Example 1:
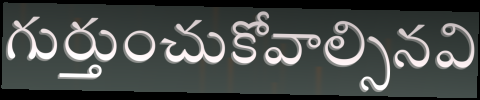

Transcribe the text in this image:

గుర్తుంచుకోవాల్సినవి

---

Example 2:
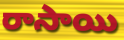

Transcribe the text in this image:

రాసాయి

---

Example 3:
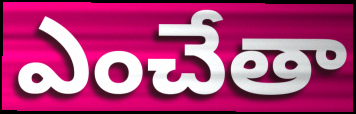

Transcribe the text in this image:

ఎంచేతా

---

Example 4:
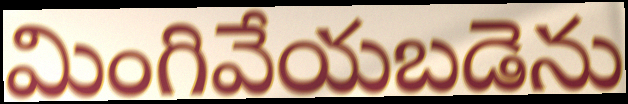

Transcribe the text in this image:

మింగివేయబడెను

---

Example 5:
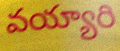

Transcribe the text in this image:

వయ్యారి